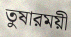
তুষারময়ী